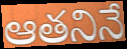
ఆతనినే